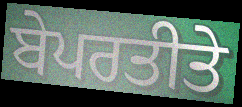
ਬੇਪਰਤੀਤੇ